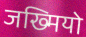
जख्मियो